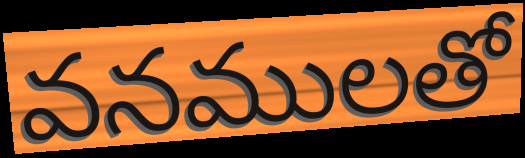
వనములతో